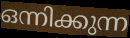
ഒന്നിക്കുന്ന